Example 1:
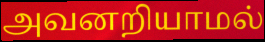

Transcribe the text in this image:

அவனறியாமல்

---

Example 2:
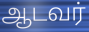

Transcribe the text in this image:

ஆடவர்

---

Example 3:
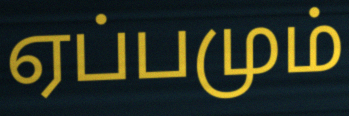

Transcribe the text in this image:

ஏப்பமும்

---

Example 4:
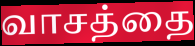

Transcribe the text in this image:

வாசத்தை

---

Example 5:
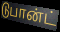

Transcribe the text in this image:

டுபான்ட்